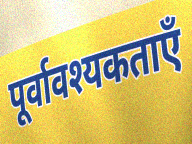
पूर्वावश्यकताएँ